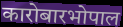
कारोबारभोपाल